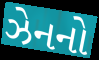
ઝેનનો